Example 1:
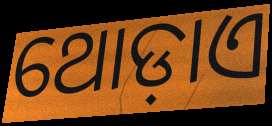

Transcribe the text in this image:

ଥୋଡ଼ାଏ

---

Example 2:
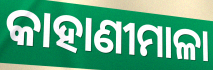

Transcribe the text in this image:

କାହାଣୀମାଳା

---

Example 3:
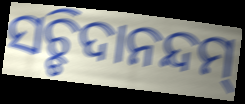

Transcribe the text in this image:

ସଚ୍ଚିଦାନନ୍ଦମ୍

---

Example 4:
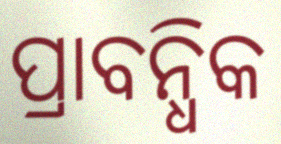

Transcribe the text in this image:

ପ୍ରାବନ୍ଧିକ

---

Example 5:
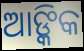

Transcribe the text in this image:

ଆଙ୍କିକ